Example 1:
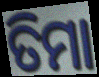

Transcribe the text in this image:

ତିମା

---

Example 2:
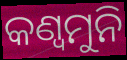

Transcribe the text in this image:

କଣ୍ୱମୁନି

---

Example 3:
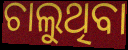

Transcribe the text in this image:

ଚାଲୁଥିବା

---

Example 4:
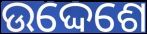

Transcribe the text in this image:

ଉଦ୍ଦେଶେ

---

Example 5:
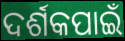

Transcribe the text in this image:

ଦର୍ଶକପାଇଁ